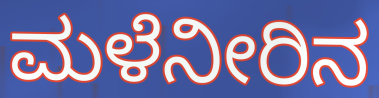
ಮಳೆನೀರಿನ